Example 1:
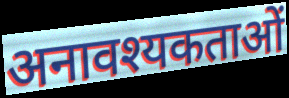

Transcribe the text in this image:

अनावश्यकताओं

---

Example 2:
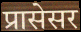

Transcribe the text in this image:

प्रासेसर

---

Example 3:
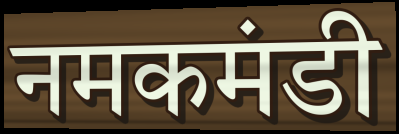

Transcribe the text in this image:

नमकमंडी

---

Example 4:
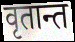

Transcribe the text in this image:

वृतान्त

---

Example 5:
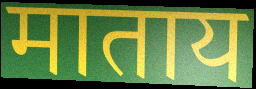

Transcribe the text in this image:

माताय